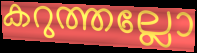
കറുത്തല്ലോ